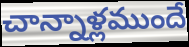
చాన్నాళ్లముందే